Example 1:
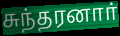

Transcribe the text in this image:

சுந்தரனார்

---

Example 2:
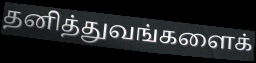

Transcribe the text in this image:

தனித்துவங்களைக்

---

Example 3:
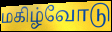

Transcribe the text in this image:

மகிழ்வோடு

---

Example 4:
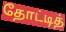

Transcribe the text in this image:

தோட்டித்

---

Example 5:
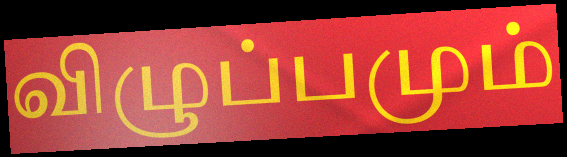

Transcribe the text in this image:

விழுப்பமும்